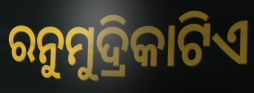
ରନୁମୁଦ୍ରିକାଟିଏ